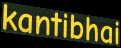
kantibhai